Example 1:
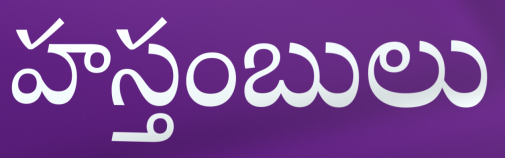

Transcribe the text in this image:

హస్తంబులు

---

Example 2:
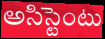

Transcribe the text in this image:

అసిస్టెంటు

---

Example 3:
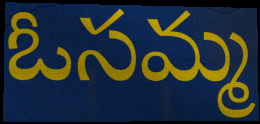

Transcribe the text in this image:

ఓసమ్మ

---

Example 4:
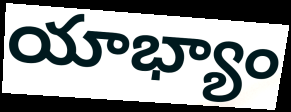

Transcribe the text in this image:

యాభ్యాం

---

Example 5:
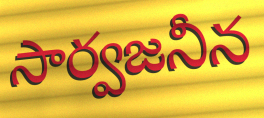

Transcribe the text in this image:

సార్వజనీన